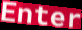
Enter